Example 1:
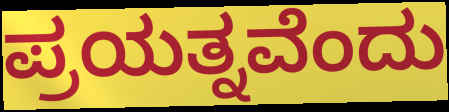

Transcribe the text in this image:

ಪ್ರಯತ್ನವೆಂದು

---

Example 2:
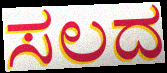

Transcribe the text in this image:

ಸಲದ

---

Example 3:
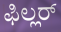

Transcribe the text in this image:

ಫಿಲ್ಲರ್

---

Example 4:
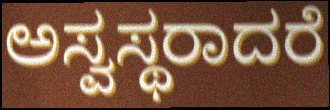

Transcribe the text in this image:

ಅಸ್ವಸ್ಥರಾದರೆ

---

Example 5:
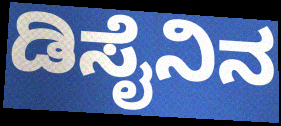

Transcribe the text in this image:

ಡಿಸೈನಿನ